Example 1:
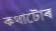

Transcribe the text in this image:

কথাটোৰ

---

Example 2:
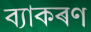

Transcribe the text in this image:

ব্যাকৰণ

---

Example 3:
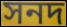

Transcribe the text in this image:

সনদ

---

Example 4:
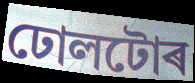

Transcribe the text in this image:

ঢোলটোৰ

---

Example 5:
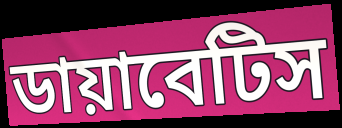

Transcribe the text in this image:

ডায়াবেটিস